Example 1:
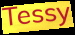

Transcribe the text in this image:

Tessy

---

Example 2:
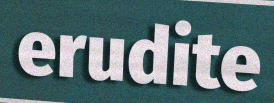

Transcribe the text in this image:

erudite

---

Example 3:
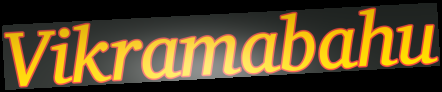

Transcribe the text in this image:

Vikramabahu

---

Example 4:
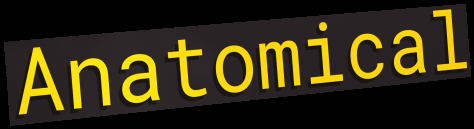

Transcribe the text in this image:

Anatomical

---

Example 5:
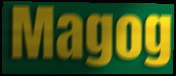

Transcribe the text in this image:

Magog